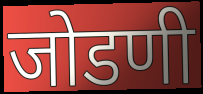
जोडणी